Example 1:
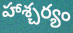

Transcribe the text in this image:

హాశ్చర్యం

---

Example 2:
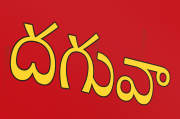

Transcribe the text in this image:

దగువా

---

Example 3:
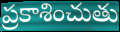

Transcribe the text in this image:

ప్రకాశించుతు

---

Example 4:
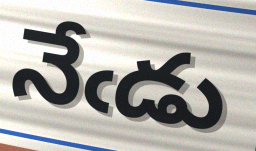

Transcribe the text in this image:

నేఁడు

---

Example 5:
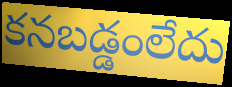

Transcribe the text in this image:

కనబడ్డంలేదు